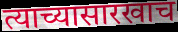
त्याच्यासारखाच